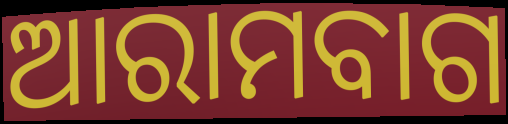
ଆରାମବାଗ